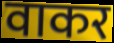
वाकर